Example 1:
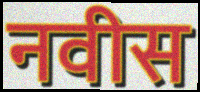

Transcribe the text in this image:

नवीस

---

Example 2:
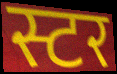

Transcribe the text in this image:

स्टर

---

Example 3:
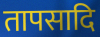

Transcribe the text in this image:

तापसादि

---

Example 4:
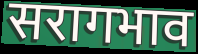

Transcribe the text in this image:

सरागभाव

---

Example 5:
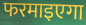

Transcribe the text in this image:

फरमाइएगा